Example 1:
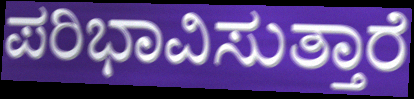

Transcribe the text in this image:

ಪರಿಭಾವಿಸುತ್ತಾರೆ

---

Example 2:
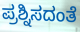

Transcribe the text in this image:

ಪ್ರಶ್ನಿಸದಂತೆ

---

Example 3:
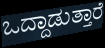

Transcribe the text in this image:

ಒದ್ದಾಡುತ್ತಾರೆ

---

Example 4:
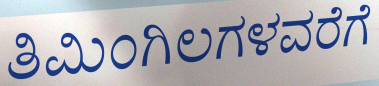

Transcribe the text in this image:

ತಿಮಿಂಗಿಲಗಳವರೆಗೆ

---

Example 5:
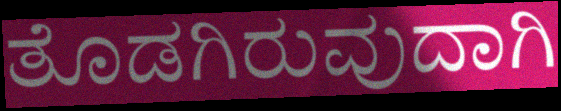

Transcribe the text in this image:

ತೊಡಗಿರುವುದಾಗಿ